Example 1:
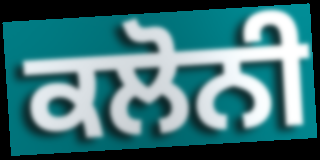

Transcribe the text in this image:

ਕਲੋਨੀ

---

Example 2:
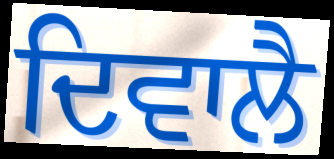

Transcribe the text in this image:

ਦਿਵਾਲੈ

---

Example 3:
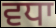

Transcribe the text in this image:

ਵਧਾ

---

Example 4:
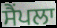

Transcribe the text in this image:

ਸੈਂਪਲਾ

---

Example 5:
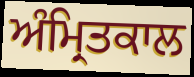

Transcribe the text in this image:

ਅੰਮ੍ਰਿਤਕਾਲ